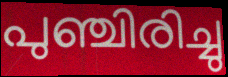
പുഞ്ചിരിച്ചു